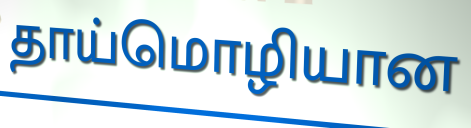
தாய்மொழியான